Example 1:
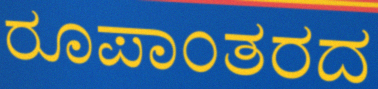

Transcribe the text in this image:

ರೂಪಾಂತರದ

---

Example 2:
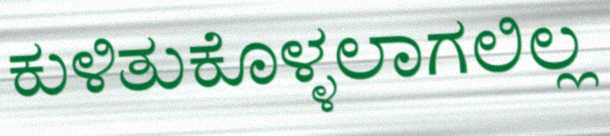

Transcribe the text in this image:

ಕುಳಿತುಕೊಳ್ಳಲಾಗಲಿಲ್ಲ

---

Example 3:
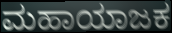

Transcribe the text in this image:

ಮಹಾಯಾಜಕ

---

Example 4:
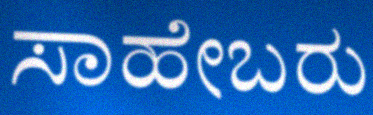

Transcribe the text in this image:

ಸಾಹೇಬರು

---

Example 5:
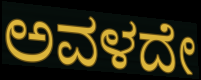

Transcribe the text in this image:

ಅವಳದೇ